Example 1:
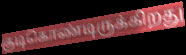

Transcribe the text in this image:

குடிகொண்டிருக்கிறது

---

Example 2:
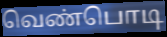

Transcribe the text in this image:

வெண்பொடி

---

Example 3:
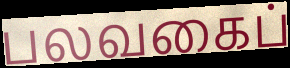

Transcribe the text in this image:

பலவகைப்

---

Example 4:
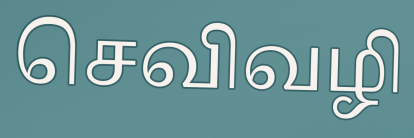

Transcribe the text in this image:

செவிவழி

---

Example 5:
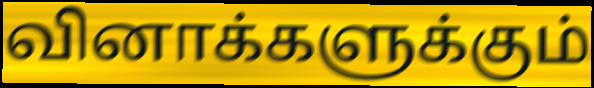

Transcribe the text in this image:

வினாக்களுக்கும்